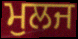
ਮੁਲਜ